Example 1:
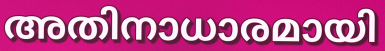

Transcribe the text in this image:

അതിനാധാരമായി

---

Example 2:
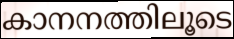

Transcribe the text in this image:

കാനനത്തിലൂടെ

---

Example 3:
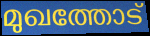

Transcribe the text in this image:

മുഖത്തോട്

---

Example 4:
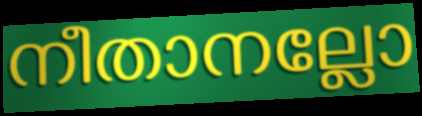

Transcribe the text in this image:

നീതാനല്ലോ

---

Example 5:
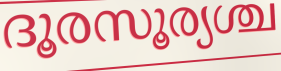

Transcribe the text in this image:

ദൂരസൂര്യശ്ച